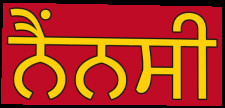
ਨੈਂਨਸੀ